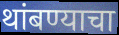
थांबण्याचा